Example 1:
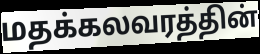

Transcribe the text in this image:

மதக்கலவரத்தின்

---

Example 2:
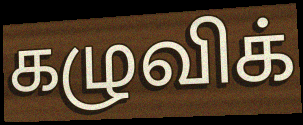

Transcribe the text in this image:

கழுவிக்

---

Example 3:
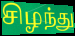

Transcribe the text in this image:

சிழந்து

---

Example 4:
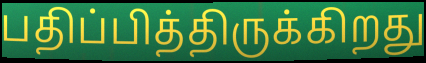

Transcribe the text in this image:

பதிப்பித்திருக்கிறது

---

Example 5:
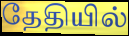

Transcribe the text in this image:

தேதியில்